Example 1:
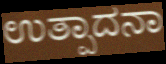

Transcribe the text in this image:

ಉತ್ಪಾದನಾ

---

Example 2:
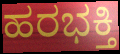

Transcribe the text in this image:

ಹರಭಕ್ತಿ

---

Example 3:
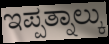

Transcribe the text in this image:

ಇಪ್ಪತ್ನಾಲ್ಕು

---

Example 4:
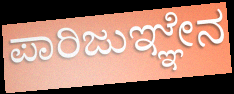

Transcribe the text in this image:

ಪಾರಿಜುಞ್ಞೇನ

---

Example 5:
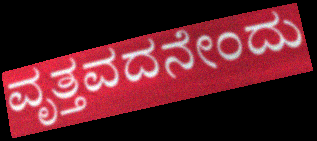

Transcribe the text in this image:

ವೃತ್ತವದನೇಂದು